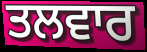
ਤਲਵਾਰ